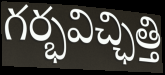
గర్భవిచ్ఛిత్తి